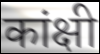
कांक्षी